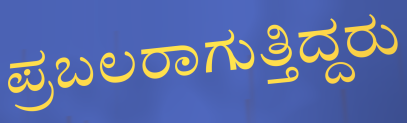
ಪ್ರಬಲರಾಗುತ್ತಿದ್ದರು